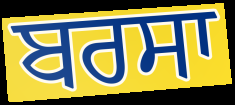
ਬਰਸਾ